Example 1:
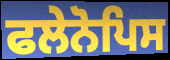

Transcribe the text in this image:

ਫਲੇਨੋਪਿਸ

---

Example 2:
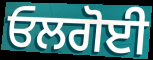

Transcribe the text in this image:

ਓਲਗੋਈ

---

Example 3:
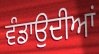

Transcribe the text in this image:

ਵੰਡਾਉਦੀਆਂ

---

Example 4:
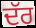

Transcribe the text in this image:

ਦੱਰ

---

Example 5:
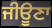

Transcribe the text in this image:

ਜੀਊਣਾ